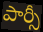
పార్సీ